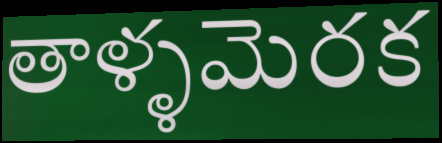
తాళ్ళమెరక